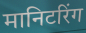
मानिटरिंग